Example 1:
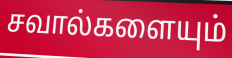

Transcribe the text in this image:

சவால்களையும்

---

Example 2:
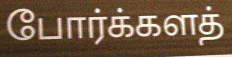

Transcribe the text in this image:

போர்க்களத்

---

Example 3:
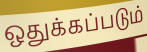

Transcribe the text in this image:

ஒதுக்கப்படும்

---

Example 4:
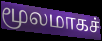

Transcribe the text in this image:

மூலமாகச்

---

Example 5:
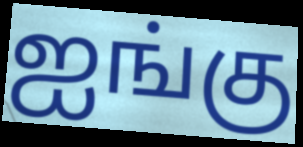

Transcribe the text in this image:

ஐங்கு